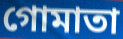
গোমাতা